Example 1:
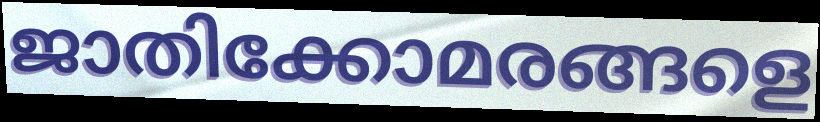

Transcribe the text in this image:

ജാതിക്കോമരങ്ങളെ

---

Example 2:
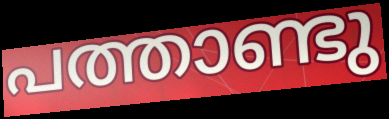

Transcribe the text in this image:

പത്താണ്ടു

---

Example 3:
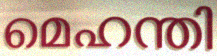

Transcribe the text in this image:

മെഹന്തി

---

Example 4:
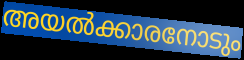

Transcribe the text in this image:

അയൽക്കാരനോടും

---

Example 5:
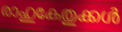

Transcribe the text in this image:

രാഹുകേതുക്കൾ